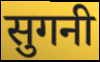
सुगनी